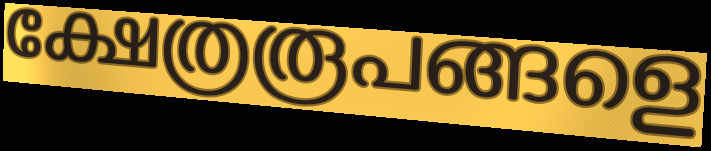
ക്ഷേത്രരൂപങ്ങളെ